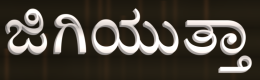
ಜಿಗಿಯುತ್ತಾ